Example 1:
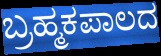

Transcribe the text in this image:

ಬ್ರಹ್ಮಕಪಾಲದ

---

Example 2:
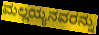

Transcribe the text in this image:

ಮಲ್ಲಯ್ಯನವರನ್ನು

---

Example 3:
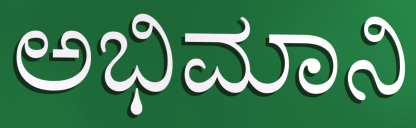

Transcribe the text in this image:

ಅಭಿಮಾನಿ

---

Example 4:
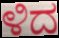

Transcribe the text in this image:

ಳಿದ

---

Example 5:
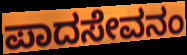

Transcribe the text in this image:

ಪಾದಸೇವನಂ